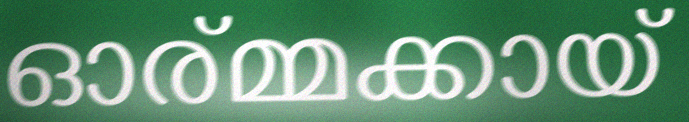
ഓര്മ്മക്കായ്